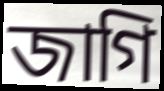
জাগি